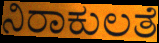
ನಿರಾಕುಲತೆ